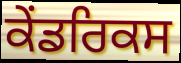
ਕੇਂਡਰਿਕਸ